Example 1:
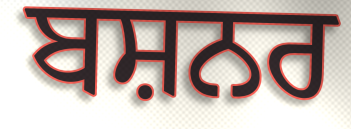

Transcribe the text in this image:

ਬਸ਼ਨਰ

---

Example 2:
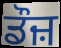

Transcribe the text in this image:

ਡੌਜ਼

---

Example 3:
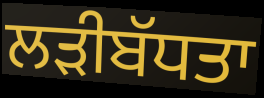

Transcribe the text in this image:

ਲੜੀਬੱਧਤਾ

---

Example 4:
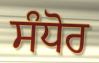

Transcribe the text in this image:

ਸੰਧੋਰ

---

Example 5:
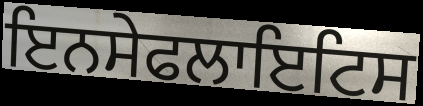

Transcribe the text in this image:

ਇਨਸੇਫਲਾਇਟਿਸ